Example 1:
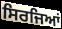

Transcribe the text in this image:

ਸਿਰਜਿਆਂ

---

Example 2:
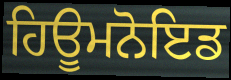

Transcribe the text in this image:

ਹਿਊਮਨੋਇਡ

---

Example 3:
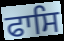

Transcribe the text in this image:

ਫਾਸਿ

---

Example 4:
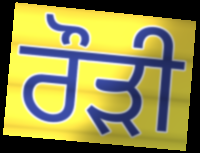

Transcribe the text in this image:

ਰੌੜੀ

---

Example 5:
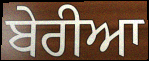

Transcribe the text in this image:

ਬੇਰੀਆ